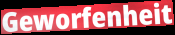
Geworfenheit